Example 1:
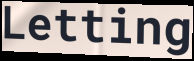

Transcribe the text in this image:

Letting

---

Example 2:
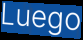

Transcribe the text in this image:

Luego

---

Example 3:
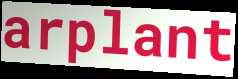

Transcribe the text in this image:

arplant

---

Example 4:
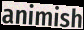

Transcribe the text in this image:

animish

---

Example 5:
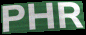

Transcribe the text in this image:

PHR